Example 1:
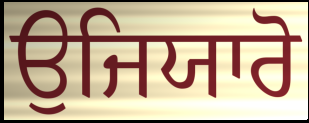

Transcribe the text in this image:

ਉਜਿਯਾਰੋ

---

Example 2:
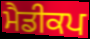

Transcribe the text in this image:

ਮੈਡੀਕਪ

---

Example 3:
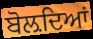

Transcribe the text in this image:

ਬੋਲ਼ਦਿਆਂ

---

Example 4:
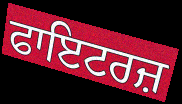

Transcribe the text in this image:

ਫਾਇਟਰਜ਼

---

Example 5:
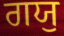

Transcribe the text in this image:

ਗਯੁ